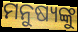
ମନୁଷ୍ୟଙ୍କୁ